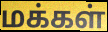
மக்கள்